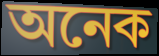
অনেক